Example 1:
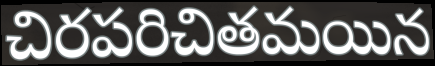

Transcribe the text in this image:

చిరపరిచితమయిన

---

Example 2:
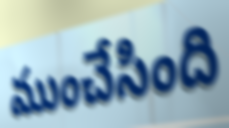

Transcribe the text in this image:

ముంచేసింది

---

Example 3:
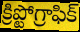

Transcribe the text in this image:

క్రిప్టోగ్రాఫిక్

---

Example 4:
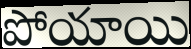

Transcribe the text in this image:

పోయాయి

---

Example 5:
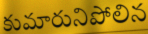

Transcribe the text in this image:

కుమారునిపోలిన